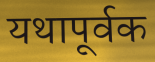
यथापूर्वक